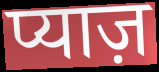
प्याज़